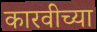
कारवीच्या